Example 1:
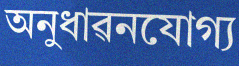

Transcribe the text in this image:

অনুধাৱনযোগ্য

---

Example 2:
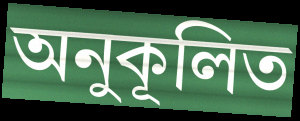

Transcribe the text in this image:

অনুকূলিত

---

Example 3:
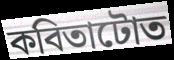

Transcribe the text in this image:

কবিতাটোত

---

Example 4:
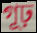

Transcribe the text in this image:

গূঢ়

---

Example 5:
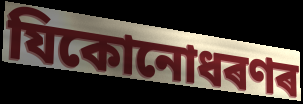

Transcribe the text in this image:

যিকোনোধৰণৰ